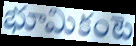
భూమికంటె